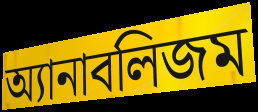
অ্যানাবলিজম